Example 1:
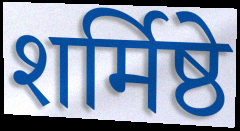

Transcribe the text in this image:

शर्मिष्ठे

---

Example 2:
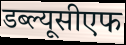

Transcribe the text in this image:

डब्ल्यूसीएफ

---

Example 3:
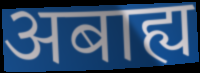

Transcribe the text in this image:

अबाह्य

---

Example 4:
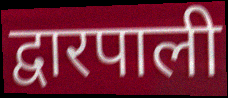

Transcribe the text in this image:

द्वारपाली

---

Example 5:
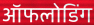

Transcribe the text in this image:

ऑफलोडिंग